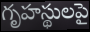
గృహస్థులపై